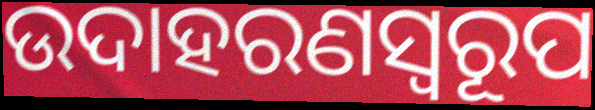
ଉଦାହରଣସ୍ୱରୂପ